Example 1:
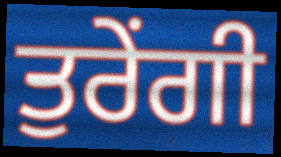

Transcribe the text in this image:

ਤੁਰੇਂਗੀ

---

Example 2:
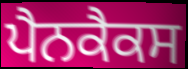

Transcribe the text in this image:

ਪੈਨਕੈਕਸ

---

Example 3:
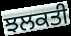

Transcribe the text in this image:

ਝਲਕਤੀ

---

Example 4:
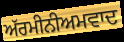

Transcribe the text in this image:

ਅੱਰਮੀਨੀਅਮਵਾਦ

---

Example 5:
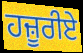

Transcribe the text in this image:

ਹਜ਼ੂਰੀਏ